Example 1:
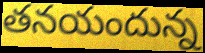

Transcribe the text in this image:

తనయందున్న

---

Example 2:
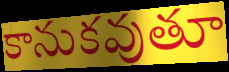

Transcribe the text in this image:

కానుకవుతూ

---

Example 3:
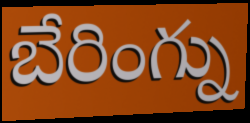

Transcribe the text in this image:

బేరింగ్ను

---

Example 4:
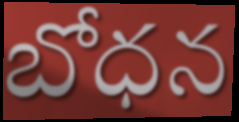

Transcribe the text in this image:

బోధన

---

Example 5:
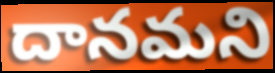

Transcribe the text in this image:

దానమని